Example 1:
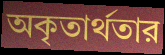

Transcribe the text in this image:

অকৃতার্থতার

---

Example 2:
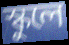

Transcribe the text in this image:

স্কুলে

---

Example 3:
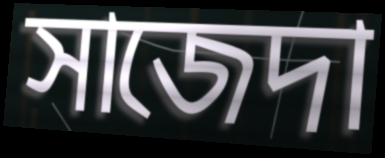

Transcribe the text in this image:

সাজেদা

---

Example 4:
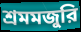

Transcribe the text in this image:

শ্রমমজুরি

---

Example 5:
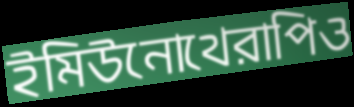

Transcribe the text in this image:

ইমিউনোথেরাপিও